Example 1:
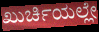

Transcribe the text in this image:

ಖುರ್ಚಿಯಲ್ಲೇ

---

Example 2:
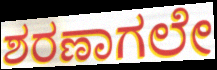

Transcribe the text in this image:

ಶರಣಾಗಲೇ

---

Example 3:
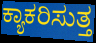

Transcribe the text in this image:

ಕ್ಯಾಕರಿಸುತ್ತ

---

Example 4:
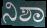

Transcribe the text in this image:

ನಿಶಾ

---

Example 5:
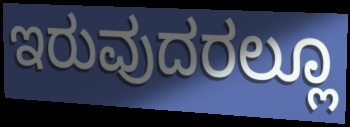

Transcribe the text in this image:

ಇರುವುದರಲ್ಲೂ